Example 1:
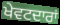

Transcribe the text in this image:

ਖੇਵਟਦਾਰਾਂ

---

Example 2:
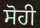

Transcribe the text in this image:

ਸੋਹੀ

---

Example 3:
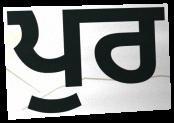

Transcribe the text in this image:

ਪੁਰ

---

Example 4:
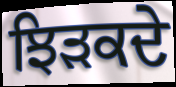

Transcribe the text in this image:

ਝਿੜਕਦੇ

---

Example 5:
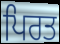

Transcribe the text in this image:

ਪਿਰਤ